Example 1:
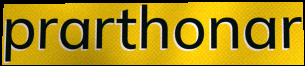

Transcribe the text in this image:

prarthonar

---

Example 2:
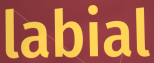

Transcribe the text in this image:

labial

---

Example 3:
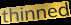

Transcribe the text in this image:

thinned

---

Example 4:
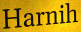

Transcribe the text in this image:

Harnih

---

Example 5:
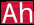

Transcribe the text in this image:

Ah